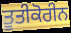
ਤੂਤੀਕੋਰੀਨ